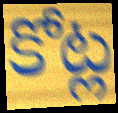
కోట్ల